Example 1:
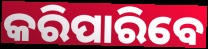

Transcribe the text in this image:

କରିପାରିବେ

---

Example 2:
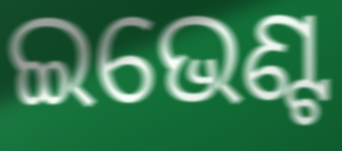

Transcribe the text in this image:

ଇଭେଣ୍ଟ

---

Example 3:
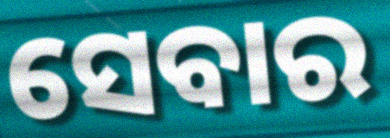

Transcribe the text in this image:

ସେବାର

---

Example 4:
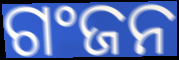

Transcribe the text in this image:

ଗଂଜନ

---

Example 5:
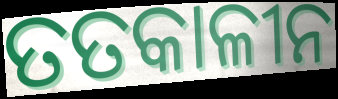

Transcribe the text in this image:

ତତକାଳୀନ